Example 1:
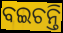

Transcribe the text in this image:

ବଇଚନ୍ତି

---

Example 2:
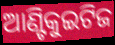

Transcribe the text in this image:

ଆଣ୍ଟିକୁଇଟିଜ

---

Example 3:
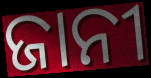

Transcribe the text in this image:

ଜାନୀ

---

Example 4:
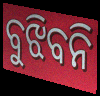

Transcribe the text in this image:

ବୁଝିବନି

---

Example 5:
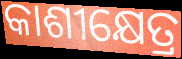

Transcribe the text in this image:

କାଶୀକ୍ଷେତ୍ର